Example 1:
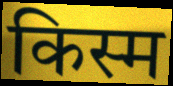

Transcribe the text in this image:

किस्‍म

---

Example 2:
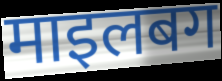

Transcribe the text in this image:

माइलबग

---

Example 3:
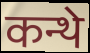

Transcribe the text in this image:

कन्थे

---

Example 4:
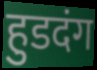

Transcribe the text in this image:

हुडदंग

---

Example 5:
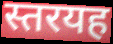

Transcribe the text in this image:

स्तरयह